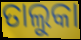
ତାଲୁକା